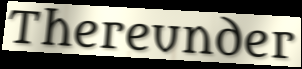
Thereunder